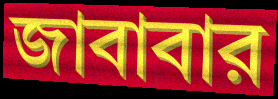
জাবাবার